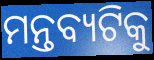
ମନ୍ତବ୍ୟଟିକୁ